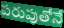
పరుపుతోనే